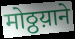
मोठ्ठय़ाने